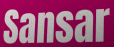
Sansar